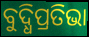
ବୁଦ୍ଧିପ୍ରତିଭା